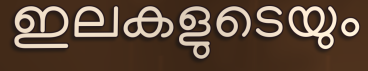
ഇലകളുടെയും